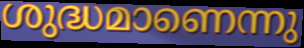
ശുദ്ധമാണെന്നു